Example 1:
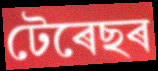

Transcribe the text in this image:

টেৰেছৰ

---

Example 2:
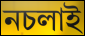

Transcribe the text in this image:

নচলাই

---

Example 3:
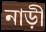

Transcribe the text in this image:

নাড়ী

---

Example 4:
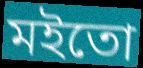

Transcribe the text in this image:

মইতো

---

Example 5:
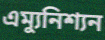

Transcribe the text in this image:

এম্যুনিশ্যন